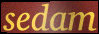
sedam